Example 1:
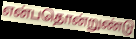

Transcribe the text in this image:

என்பதொன்றுண்டு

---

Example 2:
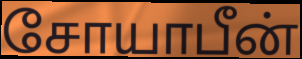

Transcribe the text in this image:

சோயாபீன்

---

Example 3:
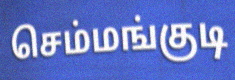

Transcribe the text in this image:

செம்மங்குடி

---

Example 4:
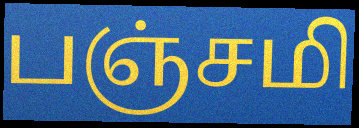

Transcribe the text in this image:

பஞ்சமி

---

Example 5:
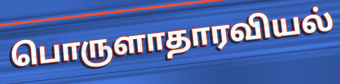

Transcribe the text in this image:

பொருளாதாரவியல்